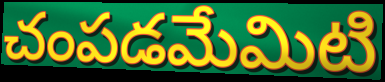
చంపడమేమిటి